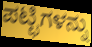
ಪಟ್ಟಿಗಳನ್ನು